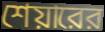
শেয়ারের